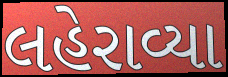
લહેરાવ્યા